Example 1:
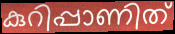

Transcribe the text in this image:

കുറിപ്പാണിത്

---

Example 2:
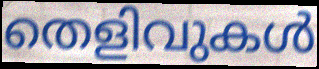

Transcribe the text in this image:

തെളിവുകൾ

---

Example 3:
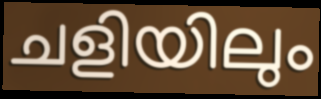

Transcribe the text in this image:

ചളിയിലും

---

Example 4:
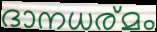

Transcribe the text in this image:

ദാനധര്മം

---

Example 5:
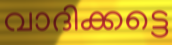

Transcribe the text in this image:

വാദിക്കട്ടെ